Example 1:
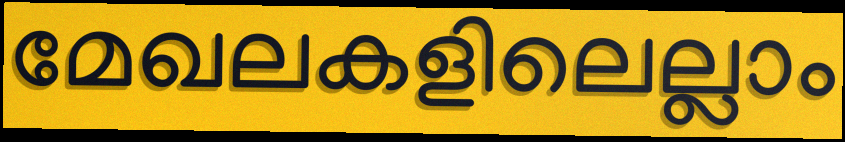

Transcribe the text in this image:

മേഖലകളിലെല്ലാം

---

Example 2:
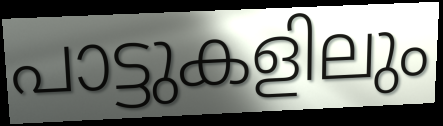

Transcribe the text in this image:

പാട്ടുകളിലും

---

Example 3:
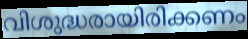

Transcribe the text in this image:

വിശുദ്ധരായിരിക്കണം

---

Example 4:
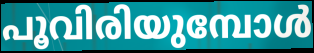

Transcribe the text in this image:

പൂവിരിയുമ്പോൾ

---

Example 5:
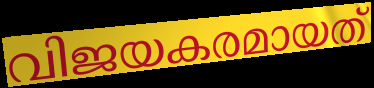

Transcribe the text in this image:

വിജയകരമായത്